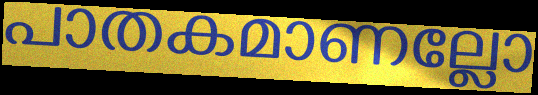
പാതകമാണല്ലോ